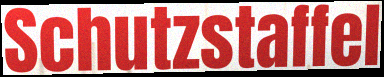
Schutzstaffel